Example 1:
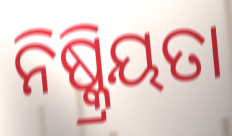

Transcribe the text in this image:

ନିଷ୍କ୍ରିୟତା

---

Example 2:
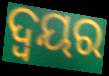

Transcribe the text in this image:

ଦ୍ବୟର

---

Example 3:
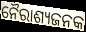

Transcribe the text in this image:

ନୈରାଶ୍ୟଜନକ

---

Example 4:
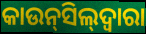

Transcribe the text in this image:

କାଉନ୍‌ସିଲ୍‌ଦ୍ବାରା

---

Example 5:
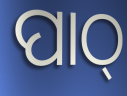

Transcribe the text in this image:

ପାଠ୍